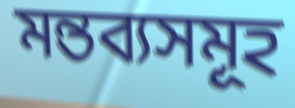
মন্তব্যসমূহ